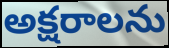
అక్షరాలను